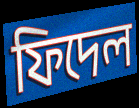
ফিদেল